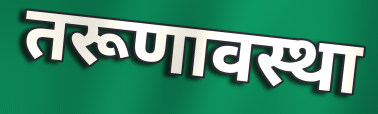
तरूणावस्था